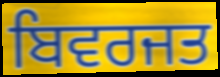
ਬਿਵਰਜਤ